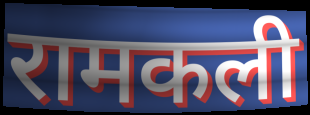
रामकली